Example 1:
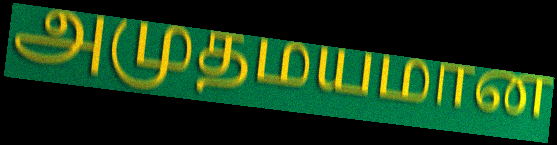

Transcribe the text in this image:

அமுதமயமான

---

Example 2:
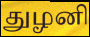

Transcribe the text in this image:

துழனி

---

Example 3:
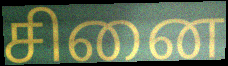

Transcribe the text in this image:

சினை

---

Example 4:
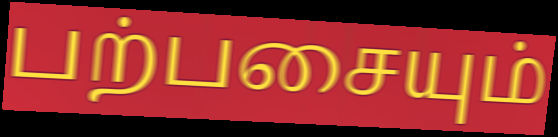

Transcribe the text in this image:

பற்பசையும்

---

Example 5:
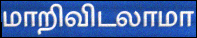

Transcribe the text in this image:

மாறிவிடலாமா